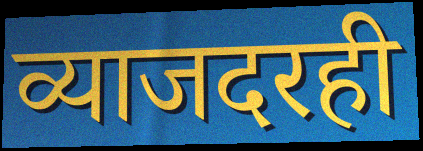
व्याजदरही